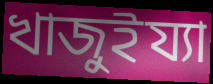
খাজুইয্যা